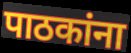
पाठकांना